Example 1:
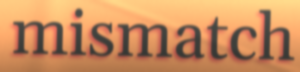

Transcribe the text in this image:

mismatch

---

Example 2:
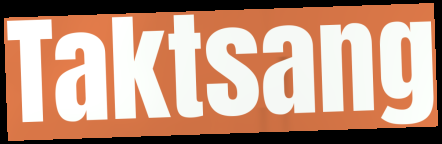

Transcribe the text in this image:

Taktsang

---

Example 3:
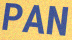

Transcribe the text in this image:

PAN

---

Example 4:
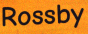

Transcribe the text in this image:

Rossby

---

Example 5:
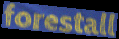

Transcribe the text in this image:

forestall